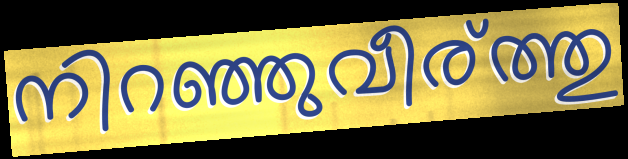
നിറഞ്ഞുവീര്ത്തു